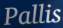
Pallis